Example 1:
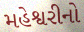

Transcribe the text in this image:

મહેશ્વરીનો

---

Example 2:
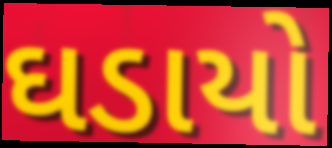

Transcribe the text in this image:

ઘડાયો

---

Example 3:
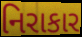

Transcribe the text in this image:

નિરાકાર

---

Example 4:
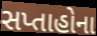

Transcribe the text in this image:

સપ્તાહોના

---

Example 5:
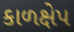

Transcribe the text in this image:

કાળક્ષેપ